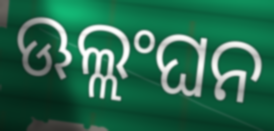
ଊଲ୍ଲଂଘନ